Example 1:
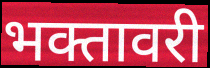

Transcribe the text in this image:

भक्तावरी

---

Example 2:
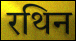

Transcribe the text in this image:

रथिन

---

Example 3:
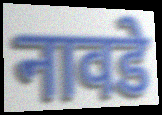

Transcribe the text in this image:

नावडे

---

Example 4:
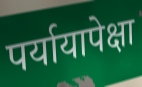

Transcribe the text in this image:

पर्यायापेक्षा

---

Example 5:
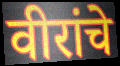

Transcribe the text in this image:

वीरांचे